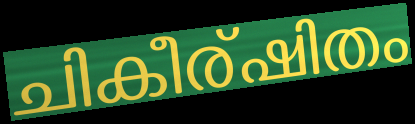
ചികീര്ഷിതം